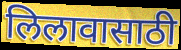
लिलावासाठी